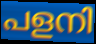
പളനി